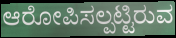
ಆರೋಪಿಸಲ್ಪಟ್ಟಿರುವ